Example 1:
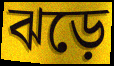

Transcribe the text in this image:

ঝড়ে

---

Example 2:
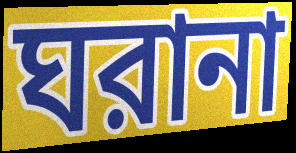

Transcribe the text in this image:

ঘরানা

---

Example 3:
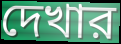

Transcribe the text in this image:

দেখার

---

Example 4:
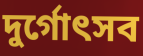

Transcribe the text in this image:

দুর্গোৎসব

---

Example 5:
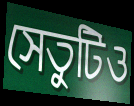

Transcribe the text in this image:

সেতুটিও